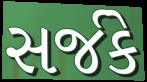
સર્જકે